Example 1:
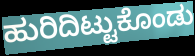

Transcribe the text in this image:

ಹುರಿದಿಟ್ಟುಕೊಂಡು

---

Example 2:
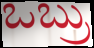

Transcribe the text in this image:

ಒಬ್ರು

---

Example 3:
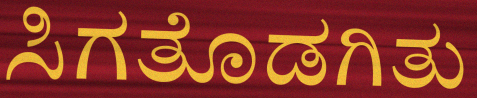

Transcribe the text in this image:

ಸಿಗತೊಡಗಿತು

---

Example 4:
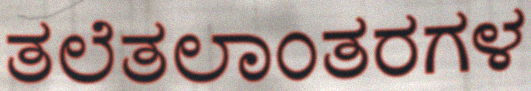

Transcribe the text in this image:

ತಲೆತಲಾಂತರಗಳ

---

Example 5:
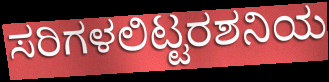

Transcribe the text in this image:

ಸರಿಗಳಲಿಟ್ಟರಶನಿಯ